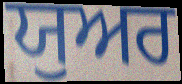
ਯੁਅਰ